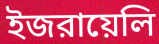
ইজরায়েলি